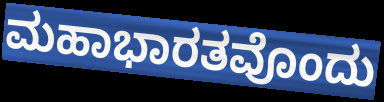
ಮಹಾಭಾರತವೊಂದು